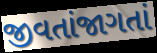
જીવતાંજાગતાં